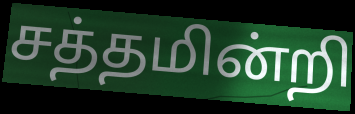
சத்தமின்றி